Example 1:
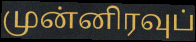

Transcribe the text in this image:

முன்னிரவுப்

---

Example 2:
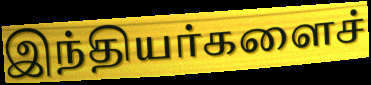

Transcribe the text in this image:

இந்தியர்களைச்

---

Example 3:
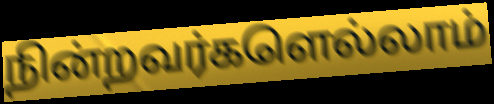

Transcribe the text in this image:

நின்றவர்களெல்லாம்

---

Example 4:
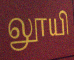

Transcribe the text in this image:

லூயி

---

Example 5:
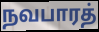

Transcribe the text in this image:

நவபாரத்